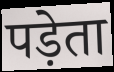
पड़ेता